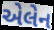
એલેન